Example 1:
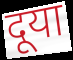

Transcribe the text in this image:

दूया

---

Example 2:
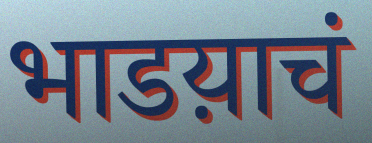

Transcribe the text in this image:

भाडय़ाचं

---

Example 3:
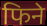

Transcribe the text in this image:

फिने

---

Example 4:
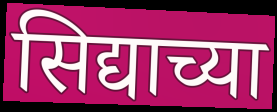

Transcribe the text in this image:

सिद्याच्या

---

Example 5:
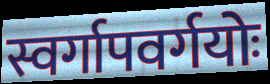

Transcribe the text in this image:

स्वर्गापवर्गयोः